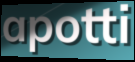
apotti